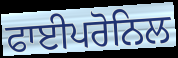
ਫਾਈਪਰੋਨਿਲ